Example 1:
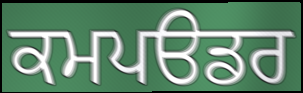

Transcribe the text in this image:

ਕਮਪੳਡਰ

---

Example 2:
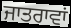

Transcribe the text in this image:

ਜਾਤਰਾਵਾਂ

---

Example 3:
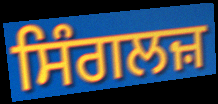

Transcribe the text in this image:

ਸਿੰਗਲਜ਼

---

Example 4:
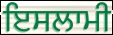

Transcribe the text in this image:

ਇਸਲਾਮੀ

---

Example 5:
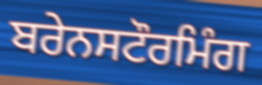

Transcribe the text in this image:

ਬਰੇਨਸਟੌਰਮਿੰਗ